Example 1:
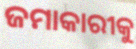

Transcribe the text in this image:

ଜମାକାରୀକୁ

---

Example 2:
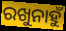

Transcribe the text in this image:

ରଖୁନାହୁଁ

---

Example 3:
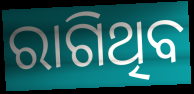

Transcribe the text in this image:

ରାଗିଥିବ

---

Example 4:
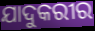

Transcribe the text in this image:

ଯାଦୁକରୀର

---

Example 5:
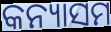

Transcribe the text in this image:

କନ୍ୟାସମ